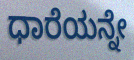
ಧಾರೆಯನ್ನೇ